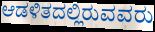
ಆಡಳಿತದಲ್ಲಿರುವವರು